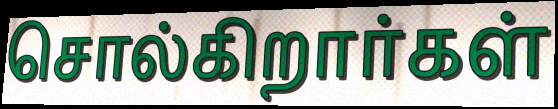
சொல்கிறார்கள்